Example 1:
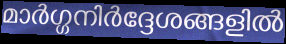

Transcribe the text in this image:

മാർഗ്ഗനിർദ്ദേശങ്ങളിൽ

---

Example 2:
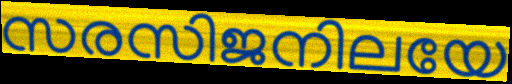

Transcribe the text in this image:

സരസിജനിലയേ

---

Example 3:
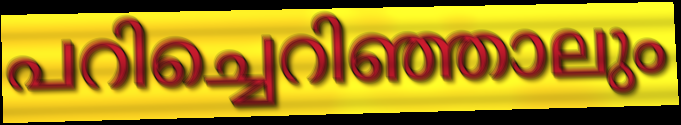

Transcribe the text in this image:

പറിച്ചെറിഞ്ഞാലും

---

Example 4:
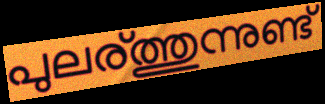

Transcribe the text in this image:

പുലര്ത്തുന്നുണ്ട്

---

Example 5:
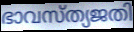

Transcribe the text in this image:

ഭാവസ്ത്യജതി